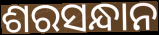
ଶରସନ୍ଧାନ